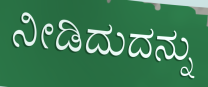
ನೀಡಿದುದನ್ನು